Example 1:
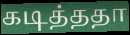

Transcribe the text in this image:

கடித்ததா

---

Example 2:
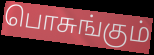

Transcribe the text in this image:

பொசுங்கும்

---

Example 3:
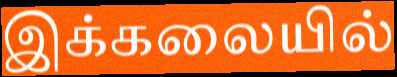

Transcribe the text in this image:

இக்கலையில்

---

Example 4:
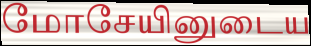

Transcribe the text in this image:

மோசேயினுடைய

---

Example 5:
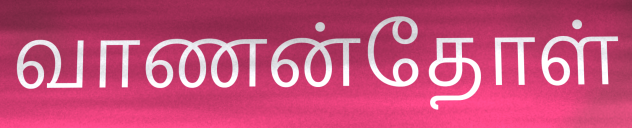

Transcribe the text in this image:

வாணன்தோள்